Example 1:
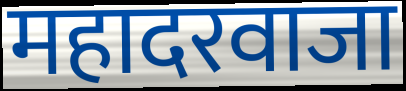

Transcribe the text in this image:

महादरवाजा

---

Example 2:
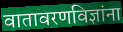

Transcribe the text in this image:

वातावरणविज्ञांना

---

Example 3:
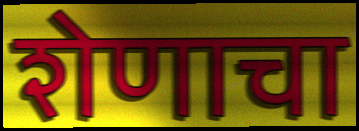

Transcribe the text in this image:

शेणाचा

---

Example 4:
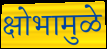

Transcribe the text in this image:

क्षोभामुळे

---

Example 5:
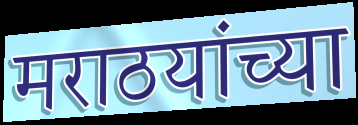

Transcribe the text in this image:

मराठयांच्या